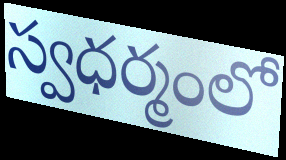
స్వధర్మంలో